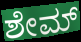
ಶೇಮ್